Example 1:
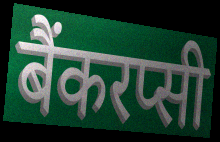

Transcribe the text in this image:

बैंकरप्सी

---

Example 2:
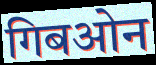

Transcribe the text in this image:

गिबओन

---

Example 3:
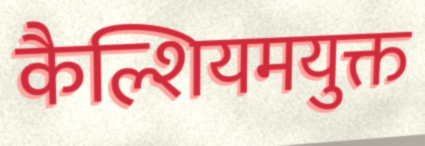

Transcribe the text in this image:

कैल्शियमयुक्त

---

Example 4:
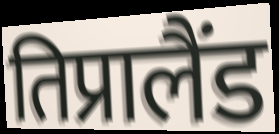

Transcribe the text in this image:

तिप्रालैंड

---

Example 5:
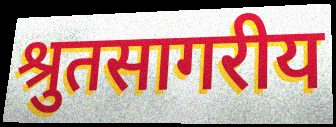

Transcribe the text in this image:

श्रुतसागरीय